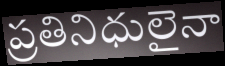
ప్రతినిధులైనా